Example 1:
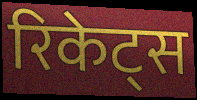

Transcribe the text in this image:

रिकेट्स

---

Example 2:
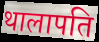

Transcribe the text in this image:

थालापति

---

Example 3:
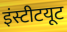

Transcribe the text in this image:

इंस्टीटयूट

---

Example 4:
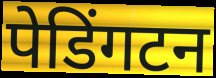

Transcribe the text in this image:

पेडिंगटन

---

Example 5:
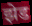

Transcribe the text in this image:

झेड